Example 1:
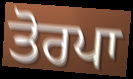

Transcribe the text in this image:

ਤੋਰਪਾ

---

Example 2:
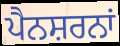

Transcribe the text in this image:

ਪੈਨਸ਼ਰਨਾਂ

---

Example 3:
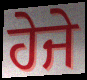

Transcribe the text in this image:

ਹੇਜੇ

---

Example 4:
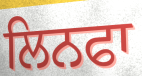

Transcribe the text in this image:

ਲਿਨਫਾ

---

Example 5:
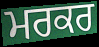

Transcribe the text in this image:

ਮਰਕਰ